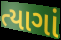
ત્યાગાં